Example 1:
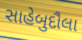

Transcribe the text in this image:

સાહેબુદૌલા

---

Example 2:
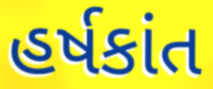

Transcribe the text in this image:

હર્ષકાંત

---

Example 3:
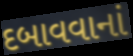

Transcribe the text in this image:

દબાવવાનાં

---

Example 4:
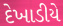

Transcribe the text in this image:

દેખાડીયે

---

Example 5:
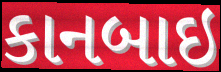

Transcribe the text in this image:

કાનબાઇ